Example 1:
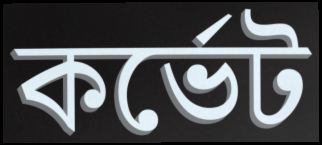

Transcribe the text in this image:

কর্ভেট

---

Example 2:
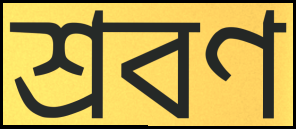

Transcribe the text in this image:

শ্রবণ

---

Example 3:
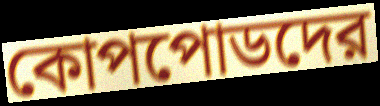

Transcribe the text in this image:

কোপপোডদের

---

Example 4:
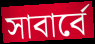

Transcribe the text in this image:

সাবার্বে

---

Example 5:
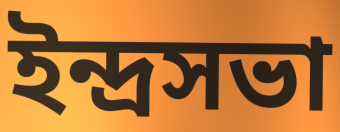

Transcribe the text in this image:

ইন্দ্রসভা